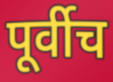
पूर्वीच